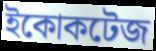
ইকোকটেজ